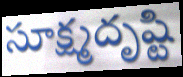
సూక్ష్మదృష్టి